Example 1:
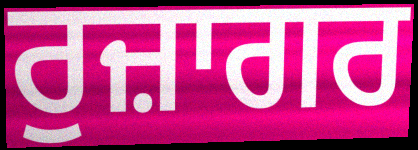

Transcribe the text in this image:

ਰੁਜ਼ਾਗਰ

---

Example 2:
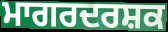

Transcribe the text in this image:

ਮਾਗਰਦਰਸ਼ਕ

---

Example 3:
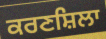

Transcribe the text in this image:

ਕਰਣਸ਼ਿਲਾ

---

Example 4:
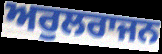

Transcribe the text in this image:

ਅਰੁਲਰਾਜਨ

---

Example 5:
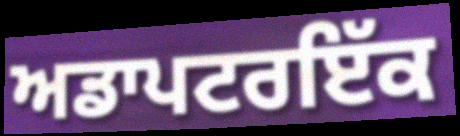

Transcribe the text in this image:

ਅਡਾਪਟਰਇੱਕ